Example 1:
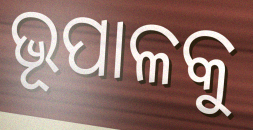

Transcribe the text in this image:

ଭୂପାଳକୁ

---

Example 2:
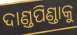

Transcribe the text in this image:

ଦାଣ୍ଡପିଣ୍ଡାକୁ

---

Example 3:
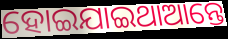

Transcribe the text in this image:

ହୋଇଯାଇଥାଆନ୍ତେ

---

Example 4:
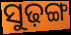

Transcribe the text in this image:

ସୁଢ଼ଙ୍ଗ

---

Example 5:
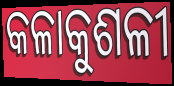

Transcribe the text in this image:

କଳାକୁଶଳୀ